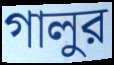
গালুর